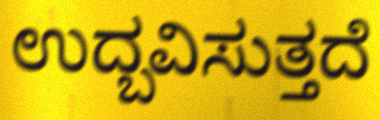
ಉದ್ಬವಿಸುತ್ತದೆ